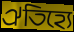
ঐতিহ্যে